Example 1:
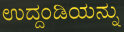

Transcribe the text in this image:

ಉದ್ದಂಡಿಯನ್ನು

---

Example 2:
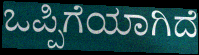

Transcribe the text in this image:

ಒಪ್ಪಿಗೆಯಾಗಿದೆ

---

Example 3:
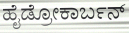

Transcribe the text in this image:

ಹೈಡ್ರೋಕಾರ್ಬನ್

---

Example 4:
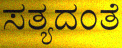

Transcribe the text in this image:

ಸತ್ಯದಂತೆ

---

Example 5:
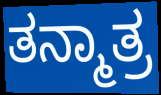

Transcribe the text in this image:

ತನ್ಮಾತ್ರ